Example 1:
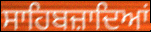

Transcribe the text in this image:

ਸਾਹਿਬਜ਼ਾਦਿਆਂ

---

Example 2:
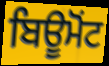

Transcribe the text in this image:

ਬਿਊਮੋਂਟ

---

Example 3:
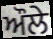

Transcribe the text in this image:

ਔਲੇ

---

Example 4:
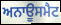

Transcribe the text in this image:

ਅਨਾਊਸਮੈਟ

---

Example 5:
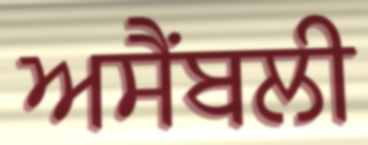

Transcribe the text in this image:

ਅਸੈਂਬਲੀ